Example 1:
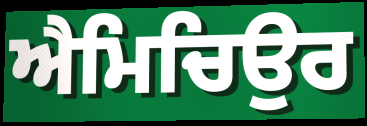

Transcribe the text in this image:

ਐਮਿਚਿਉਰ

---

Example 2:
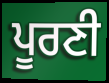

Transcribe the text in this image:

ਪੂਰਣੀ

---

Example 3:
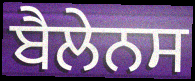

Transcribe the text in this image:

ਬੈਲੇਨਸ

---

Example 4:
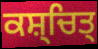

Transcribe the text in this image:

ਕਸ਼੍ਚਿਤ੍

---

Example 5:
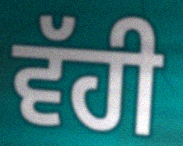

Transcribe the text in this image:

ਵੱਹੀ